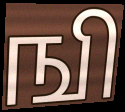
ஙி